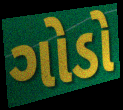
ગોડો